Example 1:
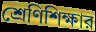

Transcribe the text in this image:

শ্রেণিশিক্ষার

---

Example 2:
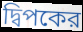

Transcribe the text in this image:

দ্বিপকের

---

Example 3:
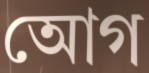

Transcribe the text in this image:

আেগ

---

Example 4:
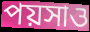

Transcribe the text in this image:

পয়সাও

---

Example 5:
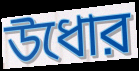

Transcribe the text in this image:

উধোর